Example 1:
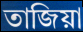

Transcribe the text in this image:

তাজিয়া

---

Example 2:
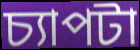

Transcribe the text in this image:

চ্যাপটা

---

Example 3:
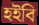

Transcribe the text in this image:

হইবি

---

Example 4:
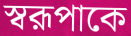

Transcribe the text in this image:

স্বরূপাকে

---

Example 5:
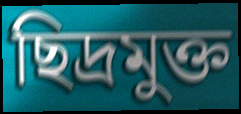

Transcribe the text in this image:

ছিদ্রমুক্ত